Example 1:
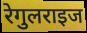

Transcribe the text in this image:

रेगुलराइज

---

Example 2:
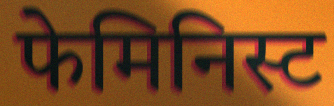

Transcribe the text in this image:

फेमिनिस्ट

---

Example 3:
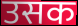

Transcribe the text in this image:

उसक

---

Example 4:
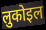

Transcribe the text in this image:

लुकोइल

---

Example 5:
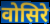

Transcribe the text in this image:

वोसिरे